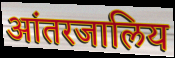
आंतरजालिय